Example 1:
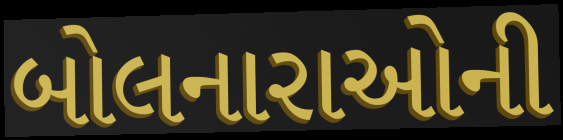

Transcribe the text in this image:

બોલનારાઓની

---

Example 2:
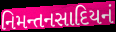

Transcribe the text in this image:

નિમન્તનસાદિયનં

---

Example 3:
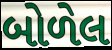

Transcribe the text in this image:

બોળેલ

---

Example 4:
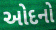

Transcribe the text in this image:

ઓદનો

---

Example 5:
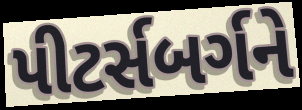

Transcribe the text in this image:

પીટર્સબર્ગને